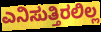
ಎನಿಸುತ್ತಿರಲಿಲ್ಲ